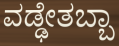
ವಡ್ಢೇತಬ್ಬಾ